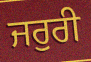
ਜਰੁਰੀ